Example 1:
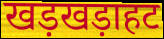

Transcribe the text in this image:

खड़खड़ाहट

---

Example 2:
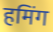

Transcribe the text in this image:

हमिंग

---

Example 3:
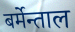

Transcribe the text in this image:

बर्मेन्ताल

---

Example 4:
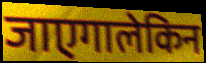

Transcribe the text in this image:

जाएगालेकिन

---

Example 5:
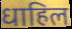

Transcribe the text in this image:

धाहिल